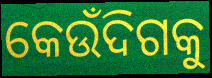
କେଉଁଦିଗକୁ